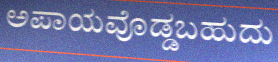
ಅಪಾಯವೊಡ್ಡಬಹುದು